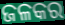
ଜଳକର